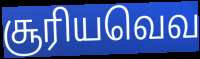
சூரியவெவ